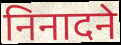
निनादने